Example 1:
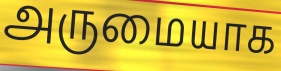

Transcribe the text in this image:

அருமையாக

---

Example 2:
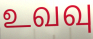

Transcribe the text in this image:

உவவு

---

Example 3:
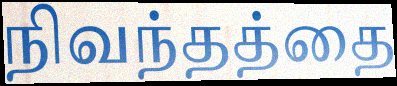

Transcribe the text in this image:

நிவந்தத்தை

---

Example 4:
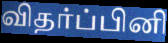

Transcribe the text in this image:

விதர்ப்பினி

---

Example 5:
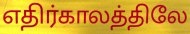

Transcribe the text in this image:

எதிர்காலத்திலே